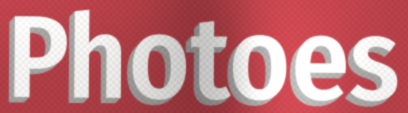
Photoes